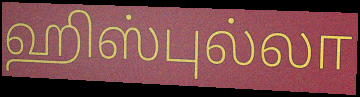
ஹிஸ்புல்லா